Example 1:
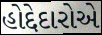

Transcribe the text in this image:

હોદ્દેદારોએ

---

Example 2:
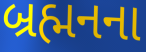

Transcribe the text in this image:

બ્રહ્મનના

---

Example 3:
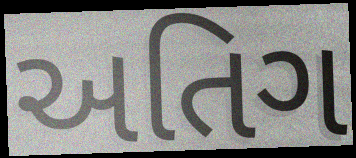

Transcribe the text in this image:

અતિગ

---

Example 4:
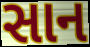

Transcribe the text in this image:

સાન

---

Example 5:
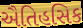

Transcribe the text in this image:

ઐતિહસિક